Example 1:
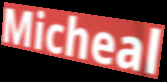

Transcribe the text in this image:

Micheal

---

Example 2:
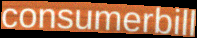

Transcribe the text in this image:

consumerbill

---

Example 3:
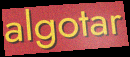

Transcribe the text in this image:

algotar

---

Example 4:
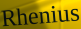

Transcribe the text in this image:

Rhenius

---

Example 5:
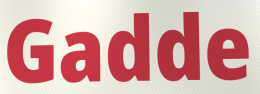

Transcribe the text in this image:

Gadde